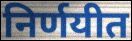
निर्णयीत